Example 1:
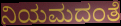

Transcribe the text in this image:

ನಿಯಮದಂತೆ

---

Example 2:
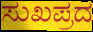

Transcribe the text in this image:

ಸುಖಪ್ರದ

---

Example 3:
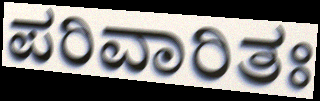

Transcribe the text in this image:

ಪರಿವಾರಿತಃ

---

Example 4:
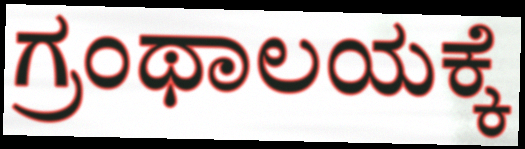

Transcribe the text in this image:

ಗ್ರಂಥಾಲಯಕ್ಕೆ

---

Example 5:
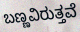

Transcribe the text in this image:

ಬಣ್ಣವಿರುತ್ತವೆ